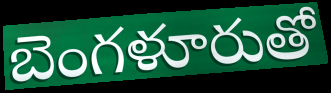
బెంగళూరుతో